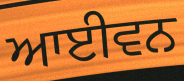
ਆਈਵਨ